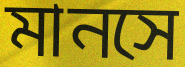
মানসে